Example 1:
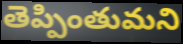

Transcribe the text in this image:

తెప్పింతుమని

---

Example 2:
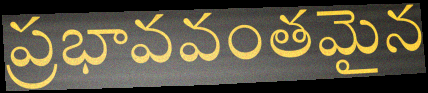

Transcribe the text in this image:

ప్రభావవంతమైన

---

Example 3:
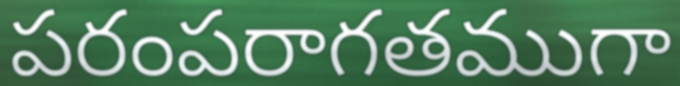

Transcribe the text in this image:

పరంపరాగతముగా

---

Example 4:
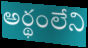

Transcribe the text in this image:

అర్థంలేని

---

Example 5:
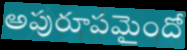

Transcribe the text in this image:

అపురూపమైందో